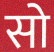
सो